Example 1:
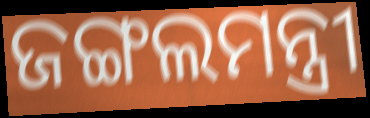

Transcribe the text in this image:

ଜଙ୍ଗଲମନ୍ତ୍ରୀ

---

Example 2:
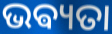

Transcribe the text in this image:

ଭଵ୍ୟତା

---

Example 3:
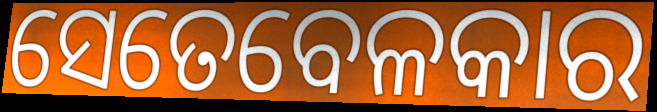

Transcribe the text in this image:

ସେତେବେଳକାର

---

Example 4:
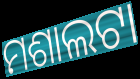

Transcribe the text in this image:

ମଶାଲଟା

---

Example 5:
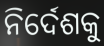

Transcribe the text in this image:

ନିର୍ଦେଶକୁ